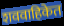
शववाहिकेत